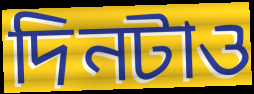
দিনটাও